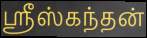
ஸ்ரீஸ்கந்தன்